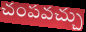
చంపవచ్చు